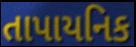
તાપાયનિક